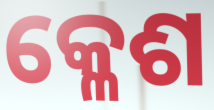
କ୍ଳେଶ